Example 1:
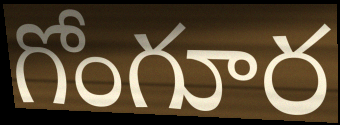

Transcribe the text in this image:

గోంగూర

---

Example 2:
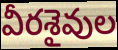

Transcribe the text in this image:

వీరశైవుల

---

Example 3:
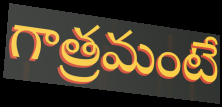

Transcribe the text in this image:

గాత్రమంటే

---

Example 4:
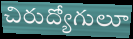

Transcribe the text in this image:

చిరుద్యోగులూ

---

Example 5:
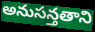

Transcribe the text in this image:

అనుసన్తతాని